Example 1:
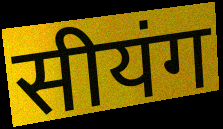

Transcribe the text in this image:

सीयंग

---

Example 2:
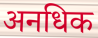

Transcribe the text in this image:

अनधिक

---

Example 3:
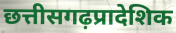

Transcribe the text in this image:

छत्तीसगढ़प्रादेशिक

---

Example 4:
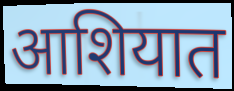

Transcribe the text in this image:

आशियात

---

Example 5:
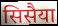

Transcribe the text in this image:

सिसैया